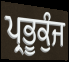
ਪ੍ਰਭੂਕੁੰਜ